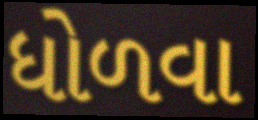
ધોળવા